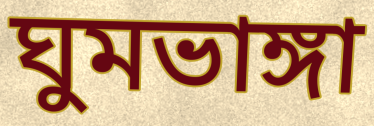
ঘুমভাঙ্গা